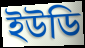
ইউডি